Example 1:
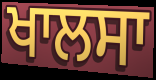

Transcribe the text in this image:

ਖਾਲਸਾ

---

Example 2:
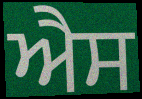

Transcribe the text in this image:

ਐਸ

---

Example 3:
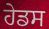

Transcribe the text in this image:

ਹੇਡਸ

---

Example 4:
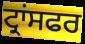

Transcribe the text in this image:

ਟ੍ਰਾਂਸਫਰ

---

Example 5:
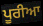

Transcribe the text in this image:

ਪੂਰੀਆ